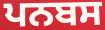
ਪਨਬਸ